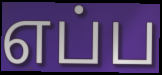
எப்ப